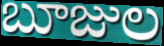
బూజుల